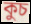
কুচ